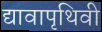
द्यावापृथिवी